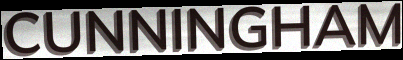
CUNNINGHAM